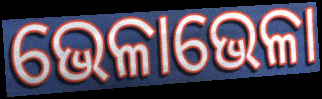
ଭେଳାଭେଳା